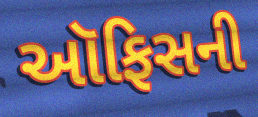
ઑફિસની